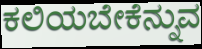
ಕಲಿಯಬೇಕೆನ್ನುವ